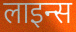
लाइन्स